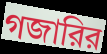
গজারির